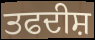
ਤਫਦੀਸ਼